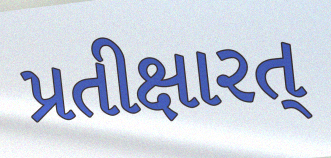
પ્રતીક્ષારત્